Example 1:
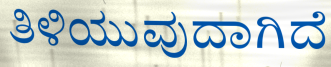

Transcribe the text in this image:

ತಿಳಿಯುವುದಾಗಿದೆ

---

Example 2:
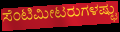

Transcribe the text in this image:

ಸೆಂಟಿಮೀಟರುಗಳಷ್ಟು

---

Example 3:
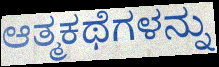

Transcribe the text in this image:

ಆತ್ಮಕಥೆಗಳನ್ನು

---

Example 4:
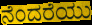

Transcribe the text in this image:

ನೆಂದರೆಯು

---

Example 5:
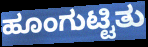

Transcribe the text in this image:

ಹೂಂಗುಟ್ಟಿತು